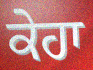
ਕੇਹਾ